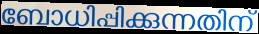
ബോധിപ്പിക്കുന്നതിന്